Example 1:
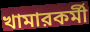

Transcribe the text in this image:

খামারকর্মী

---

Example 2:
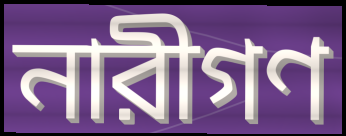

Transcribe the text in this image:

নারীগণ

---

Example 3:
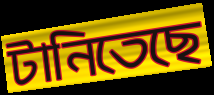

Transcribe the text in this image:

টানিতেছে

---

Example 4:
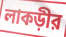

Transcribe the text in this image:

লাকড়ীর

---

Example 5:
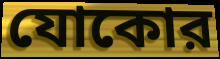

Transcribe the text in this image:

যোকোর